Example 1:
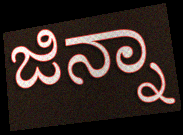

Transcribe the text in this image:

ಜಿನ್ನಾ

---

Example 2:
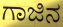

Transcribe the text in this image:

ಗಾಜಿನ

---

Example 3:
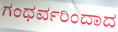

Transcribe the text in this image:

ಗಂಧರ್ವರಿಂದಾದ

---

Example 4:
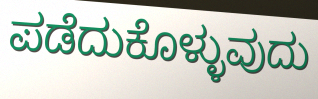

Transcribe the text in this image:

ಪಡೆದುಕೊಳ್ಳುವುದು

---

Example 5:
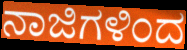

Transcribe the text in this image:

ನಾಜಿಗಳಿಂದ